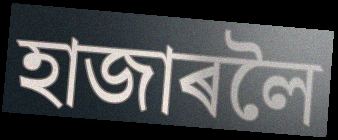
হাজাৰলৈ